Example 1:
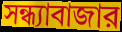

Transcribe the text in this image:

সন্ধ্যাবাজার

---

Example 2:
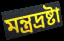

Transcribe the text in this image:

মন্ত্রদ্রষ্টা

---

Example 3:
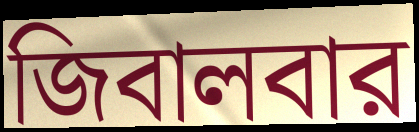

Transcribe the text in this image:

জিবালবার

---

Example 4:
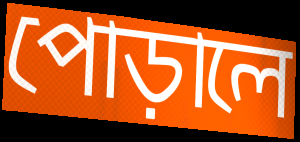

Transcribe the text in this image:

পোড়ালে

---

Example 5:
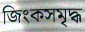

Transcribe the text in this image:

জিংকসমৃদ্ধ